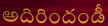
అదిరిందండీ